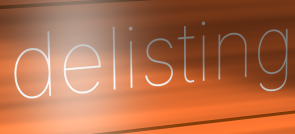
delisting